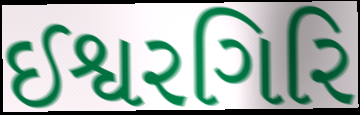
ઈશ્વરગિરિ